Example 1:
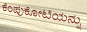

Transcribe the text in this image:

ಕೆಂಪುಕೋಟೆಯನ್ನು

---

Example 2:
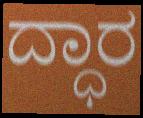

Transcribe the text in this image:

ದ್ಧಾರ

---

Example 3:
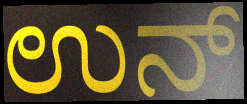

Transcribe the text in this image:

ಉನ್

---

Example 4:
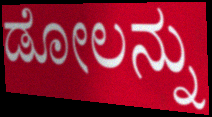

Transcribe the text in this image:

ಡೋಲನ್ನು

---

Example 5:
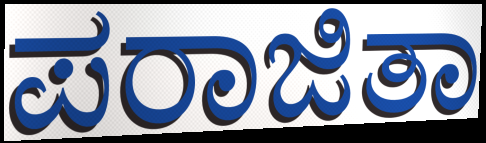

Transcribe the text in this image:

ಪರಾಜಿತಾ